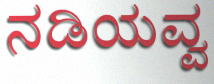
ನಡಿಯವ್ವ